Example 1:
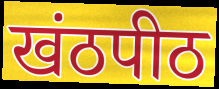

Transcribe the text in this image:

खंठपीठ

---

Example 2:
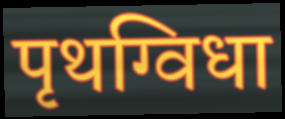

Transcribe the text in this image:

पृथग्विधा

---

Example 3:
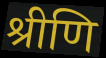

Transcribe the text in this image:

श्रीणि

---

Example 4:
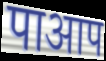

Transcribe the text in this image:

पाआप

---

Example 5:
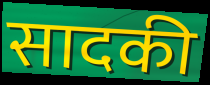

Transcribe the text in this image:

सादकी